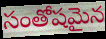
సంతోషమైన